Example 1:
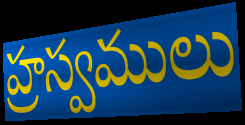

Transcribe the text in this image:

హ్రస్వములు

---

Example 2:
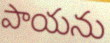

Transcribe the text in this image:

పాయను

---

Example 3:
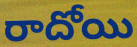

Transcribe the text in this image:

రాదోయి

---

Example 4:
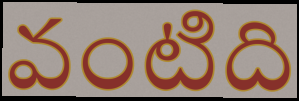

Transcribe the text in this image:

వంటిది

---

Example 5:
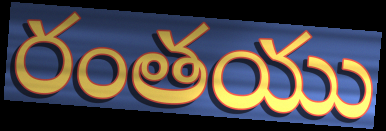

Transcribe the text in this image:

రంతయు